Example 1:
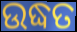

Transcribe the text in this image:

ଉଦ୍ଧତ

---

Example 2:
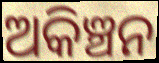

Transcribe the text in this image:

ଅକିଞ୍ଚନ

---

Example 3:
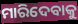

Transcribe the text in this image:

ମାରିଦେବାକୁ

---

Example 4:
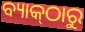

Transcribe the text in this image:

ବ୍ୟାକ୍‌ଠାରୁ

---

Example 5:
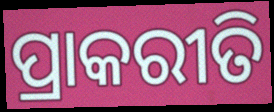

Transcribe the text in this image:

ପ୍ରାକରୀତି